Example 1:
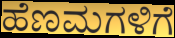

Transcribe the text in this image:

ಹೆಣಮಗಳಿಗೆ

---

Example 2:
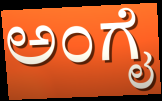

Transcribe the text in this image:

ಅಂಗೈ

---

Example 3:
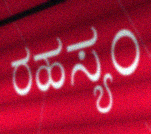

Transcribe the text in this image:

ರಹಸ್ಯಂ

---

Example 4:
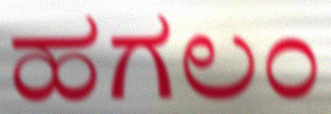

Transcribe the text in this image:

ಹಗಲಂ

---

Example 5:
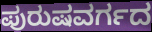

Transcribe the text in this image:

ಪುರುಷವರ್ಗದ